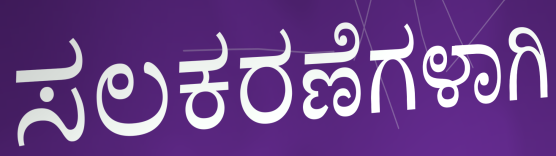
ಸಲಕರಣೆಗಳಾಗಿ